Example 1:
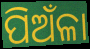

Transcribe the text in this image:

ପିଅଁଳା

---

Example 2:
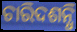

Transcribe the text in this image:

ଚାରିଦଶନ୍ଧି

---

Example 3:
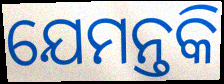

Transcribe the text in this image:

ଯେମନ୍ତକି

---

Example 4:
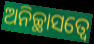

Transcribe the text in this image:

ଅନିଚ୍ଛାସତ୍ୱେ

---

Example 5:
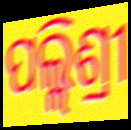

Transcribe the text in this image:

ପଲ୍ଲିଶ୍ରୀ